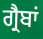
ਗ੍ਰੈਬਾਂ